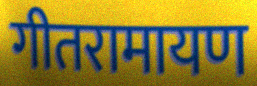
गीतरामायण